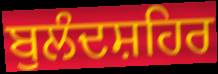
ਬੁਲੰਦਸ਼ਹਿਰ